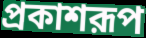
প্রকাশরূপ